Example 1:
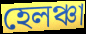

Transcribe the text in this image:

হেলঞ্চা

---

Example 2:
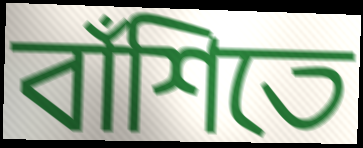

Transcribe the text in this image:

বাঁশিতে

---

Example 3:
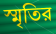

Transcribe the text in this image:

স্মৃতির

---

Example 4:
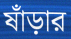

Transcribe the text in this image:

ষাঁড়ার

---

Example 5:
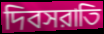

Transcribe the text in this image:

দিবসরাতি